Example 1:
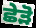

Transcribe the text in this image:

ਛੇੜੋ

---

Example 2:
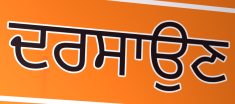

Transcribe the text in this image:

ਦਰਸਾਉਣ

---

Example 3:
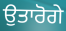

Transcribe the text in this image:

ਉਤਾਰੋਗੇ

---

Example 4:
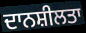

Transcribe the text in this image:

ਦਾਨਸ਼ੀਲਤਾ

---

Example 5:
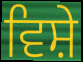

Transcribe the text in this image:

ਵਿਸ਼ੇ